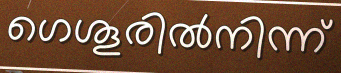
ഗെശൂരിൽനിന്ന്